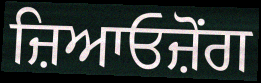
ਜ਼ਿਆਓਜ਼ੋਂਗ